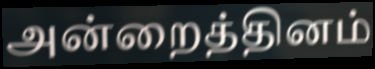
அன்றைத்தினம்